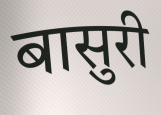
बासुरी